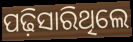
ପଢ଼ିସାରିଥିଲେ